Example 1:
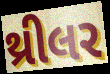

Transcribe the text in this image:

થ્રીલર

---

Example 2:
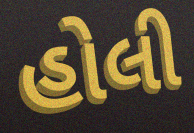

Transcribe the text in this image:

હોલી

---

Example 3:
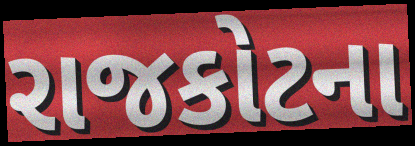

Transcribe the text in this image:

રાજકોટના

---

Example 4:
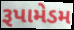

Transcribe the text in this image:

રૂપામેડમ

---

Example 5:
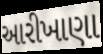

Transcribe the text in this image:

આરીખાણા